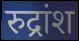
रुद्रांश